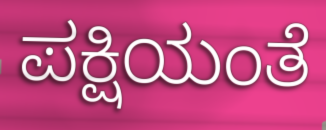
ಪಕ್ಷಿಯಂತೆ